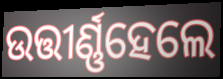
ଉତ୍ତୀର୍ଣ୍ଣହେଲେ